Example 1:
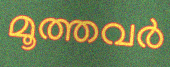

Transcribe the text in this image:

മൂത്തവർ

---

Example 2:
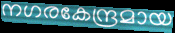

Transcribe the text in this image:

നഗരകേന്ദ്രമായ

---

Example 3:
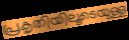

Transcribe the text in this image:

പ്രകൃതിയിലൂടെയുള്ള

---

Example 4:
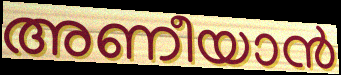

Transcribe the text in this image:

അണീയാൻ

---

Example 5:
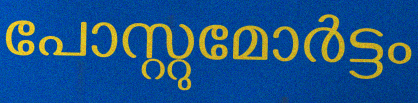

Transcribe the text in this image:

പോസ്റ്റുമോർട്ടം